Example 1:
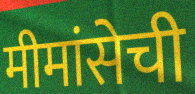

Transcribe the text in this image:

मीमांसेची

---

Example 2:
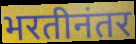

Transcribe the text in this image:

भरतीनंतर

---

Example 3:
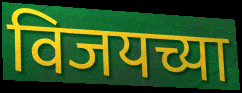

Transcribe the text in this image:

विजयच्या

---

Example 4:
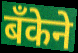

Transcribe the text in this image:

बँकेने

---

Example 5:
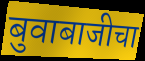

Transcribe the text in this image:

बुवाबाजीचा